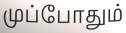
முப்போதும்